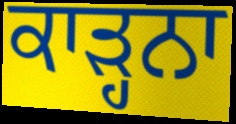
ਕਾੜ੍ਹਨਾ